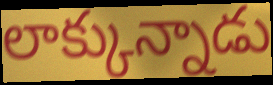
లాక్కున్నాడు